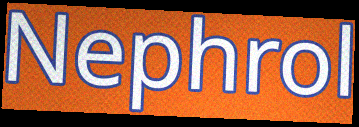
Nephrol